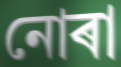
নোৰা